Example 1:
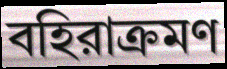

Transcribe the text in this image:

বহিরাক্রমণ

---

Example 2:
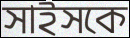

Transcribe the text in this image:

সাইসকে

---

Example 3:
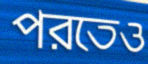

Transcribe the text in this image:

পরতেও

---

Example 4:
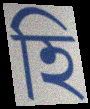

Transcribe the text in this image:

হি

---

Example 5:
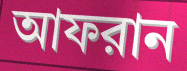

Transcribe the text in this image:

আফরান